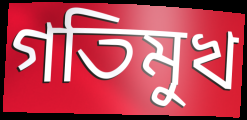
গতিমুখ